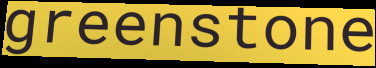
greenstone